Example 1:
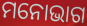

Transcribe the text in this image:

ମନୋଭାଗ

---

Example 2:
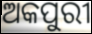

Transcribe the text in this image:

ଅକପୁରୀ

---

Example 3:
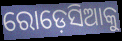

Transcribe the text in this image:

ରୋଡ଼େସିଆକୁ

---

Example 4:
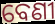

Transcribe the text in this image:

ବେଣୀ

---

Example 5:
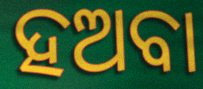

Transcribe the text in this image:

ହଅବା